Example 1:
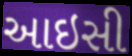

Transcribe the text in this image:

આઇસી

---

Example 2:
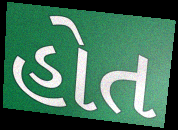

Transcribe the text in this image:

હોત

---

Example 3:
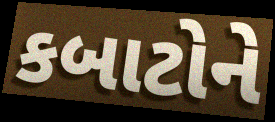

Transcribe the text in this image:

કબાટોને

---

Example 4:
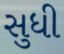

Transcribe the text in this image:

સુધી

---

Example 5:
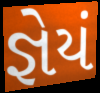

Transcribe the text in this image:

જ્ઞેયં